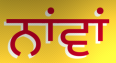
ਨਾਂਵਾਂ